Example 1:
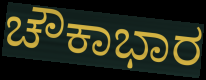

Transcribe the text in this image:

ಚೌಕಾಭಾರ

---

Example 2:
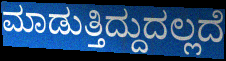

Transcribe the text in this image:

ಮಾಡುತ್ತಿದ್ದುದಲ್ಲದೆ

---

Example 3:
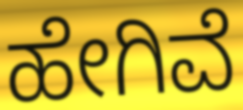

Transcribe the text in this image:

ಹೇಗಿವೆ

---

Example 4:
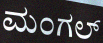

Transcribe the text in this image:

ಮಂಗಲ್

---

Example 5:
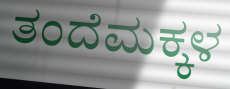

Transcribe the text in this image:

ತಂದೆಮಕ್ಕಳ